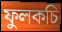
ফুলকচি